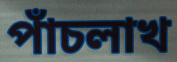
পাঁচলাখ